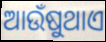
ଆଉଁଷୁଥାଏ